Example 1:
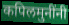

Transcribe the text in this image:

कपिलमुनींनी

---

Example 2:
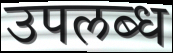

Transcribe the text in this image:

उपलब्ध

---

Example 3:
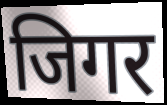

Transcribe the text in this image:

जिगर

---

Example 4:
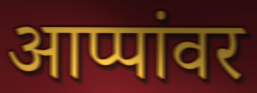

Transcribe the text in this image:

आप्पांवर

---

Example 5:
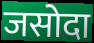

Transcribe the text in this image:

जसोदा